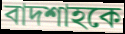
বাদশাহকে